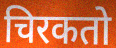
चिरकतो